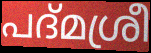
പദ്മശ്രീ